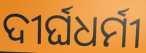
ଦୀର୍ଘଧର୍ମୀ